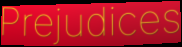
Prejudices